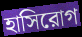
হাসিরোগ